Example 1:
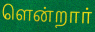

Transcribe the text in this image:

ளென்றார்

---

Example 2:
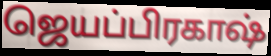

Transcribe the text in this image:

ஜெயப்பிரகாஷ்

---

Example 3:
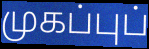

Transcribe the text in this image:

முகப்புப்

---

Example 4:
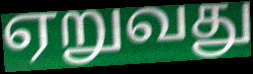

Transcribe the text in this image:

ஏறுவது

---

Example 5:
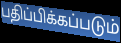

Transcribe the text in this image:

பதிப்பிக்கப்படும்